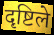
दृष्टिले